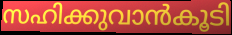
സഹിക്കുവാൻകൂടി